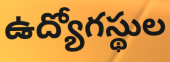
ఉద్యోగస్థుల